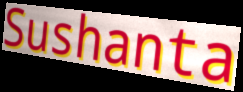
Sushanta